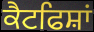
ਕੈਟਫਿਸ਼ਾਂ